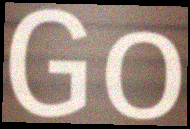
Go